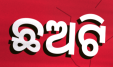
ଛଅଟି